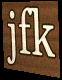
jfk